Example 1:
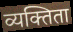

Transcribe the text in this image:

व्यक्तिता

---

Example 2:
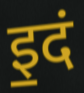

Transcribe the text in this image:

इ॒दं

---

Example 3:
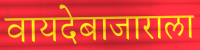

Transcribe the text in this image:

वायदेबाजाराला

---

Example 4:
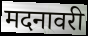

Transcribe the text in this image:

मदनावरी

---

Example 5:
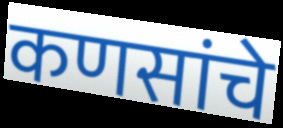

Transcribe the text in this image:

कणसांचे